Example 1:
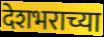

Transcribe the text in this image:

देशभराच्या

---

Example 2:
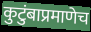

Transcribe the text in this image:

कुटुंबाप्रमाणेच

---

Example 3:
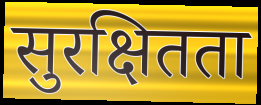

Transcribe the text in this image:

सुरक्षितता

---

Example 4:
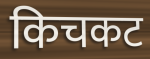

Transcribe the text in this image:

किचकट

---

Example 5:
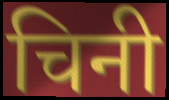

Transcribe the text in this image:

चिनी